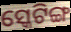
ସ୍କେଟିଙ୍ଗ